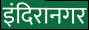
इंदिरानगर